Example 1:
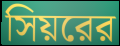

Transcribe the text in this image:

সিয়রের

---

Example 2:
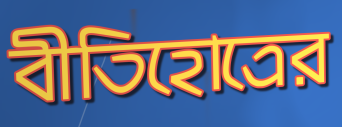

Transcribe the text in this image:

বীতিহোত্রের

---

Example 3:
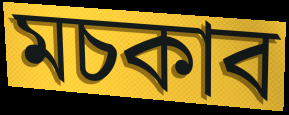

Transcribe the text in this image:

মচকাব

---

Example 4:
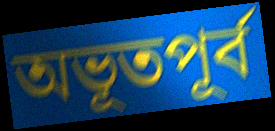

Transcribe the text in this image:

অভূতপূর্ব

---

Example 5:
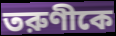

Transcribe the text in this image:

তরুণীকে